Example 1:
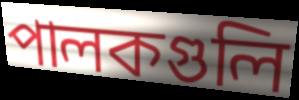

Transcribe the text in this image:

পালকগুলি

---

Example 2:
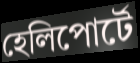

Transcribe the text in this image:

হেলিপোর্টে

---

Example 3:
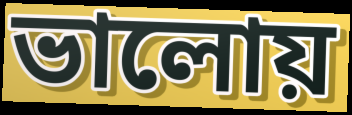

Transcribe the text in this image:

ভালোয়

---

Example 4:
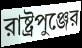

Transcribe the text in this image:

রাষ্ট্রপুঞ্জের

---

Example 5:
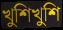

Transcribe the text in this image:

খুশিখুশি